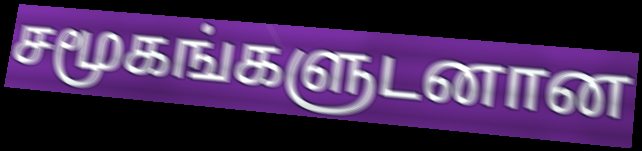
சமூகங்களுடனான